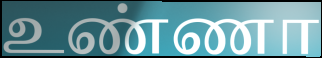
உண்ணா